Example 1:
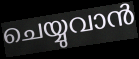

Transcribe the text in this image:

ചെയ്യുവാൻ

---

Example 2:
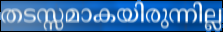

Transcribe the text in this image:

തടസ്സമാകയിരുന്നില്ല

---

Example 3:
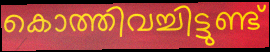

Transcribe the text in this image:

കൊത്തിവച്ചിട്ടുണ്ട്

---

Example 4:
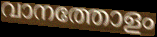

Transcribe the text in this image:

വാനത്തോളം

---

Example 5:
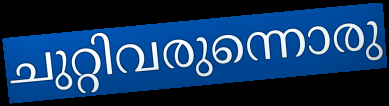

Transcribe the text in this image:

ചുറ്റിവരുന്നൊരു